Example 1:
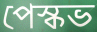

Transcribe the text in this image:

পেস্কভ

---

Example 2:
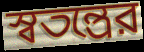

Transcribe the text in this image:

স্বতন্ত্রের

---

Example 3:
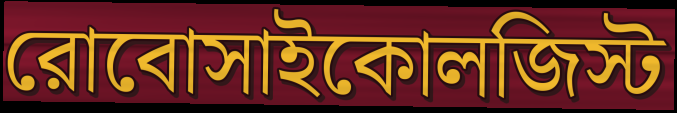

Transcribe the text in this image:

রোবোসাইকোলজিস্ট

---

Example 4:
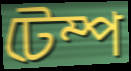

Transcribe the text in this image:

টেম্প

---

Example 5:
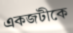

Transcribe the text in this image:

একজটীকে